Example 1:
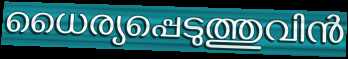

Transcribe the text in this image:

ധൈര്യപ്പെടുത്തുവിൻ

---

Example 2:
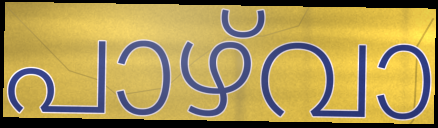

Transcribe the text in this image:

പാഴ്‌വാ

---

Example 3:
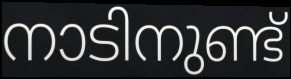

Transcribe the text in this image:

നാടിനുണ്ട്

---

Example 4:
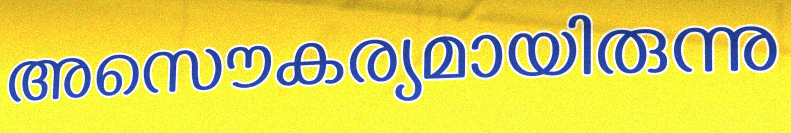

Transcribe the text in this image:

അസൌകര്യമായിരുന്നു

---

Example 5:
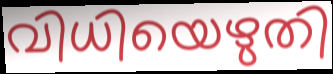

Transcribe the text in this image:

വിധിയെഴുതി